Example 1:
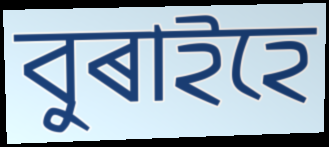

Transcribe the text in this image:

বুৰাইহে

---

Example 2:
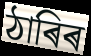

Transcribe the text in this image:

ঠাৰিৰ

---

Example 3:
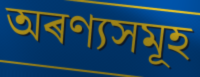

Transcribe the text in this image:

অৰণ্যসমূহ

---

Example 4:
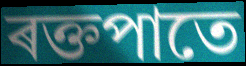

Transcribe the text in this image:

ৰক্তপাতে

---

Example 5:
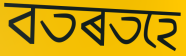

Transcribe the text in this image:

বতৰতহে